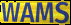
WAMS